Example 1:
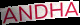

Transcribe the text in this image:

ANDHA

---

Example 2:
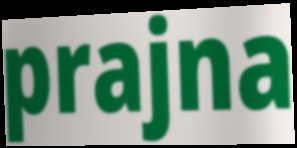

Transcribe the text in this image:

prajna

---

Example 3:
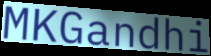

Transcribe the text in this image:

MKGandhi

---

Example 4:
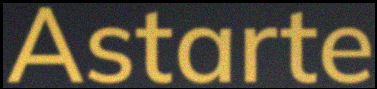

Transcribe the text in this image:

Astarte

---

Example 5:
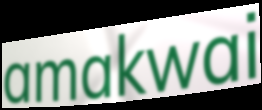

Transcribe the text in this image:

amakwai